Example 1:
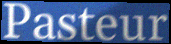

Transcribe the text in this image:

Pasteur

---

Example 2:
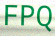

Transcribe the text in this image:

FPQ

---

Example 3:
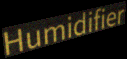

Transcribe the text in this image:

Humidifier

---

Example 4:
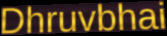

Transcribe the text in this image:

Dhruvbhai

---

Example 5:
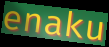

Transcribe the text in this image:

enaku